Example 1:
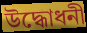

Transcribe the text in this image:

উদ্ধোধনী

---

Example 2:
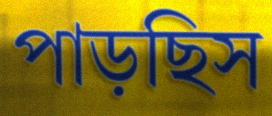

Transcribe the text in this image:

পাড়ছিস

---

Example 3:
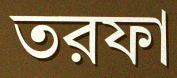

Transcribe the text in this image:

তরফা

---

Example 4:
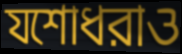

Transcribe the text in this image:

যশোধরাও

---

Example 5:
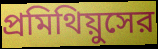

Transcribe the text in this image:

প্রমিথিয়ুসের